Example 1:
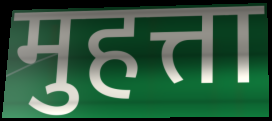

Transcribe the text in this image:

मुहत्ता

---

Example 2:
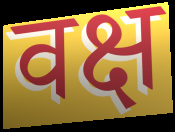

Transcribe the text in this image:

वक्ष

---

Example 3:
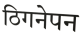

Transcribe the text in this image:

ठिगनेपन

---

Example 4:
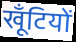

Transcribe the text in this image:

खूँटियों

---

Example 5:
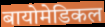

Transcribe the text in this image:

बायोमेडिकल